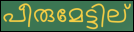
പീരുമേട്ടില്